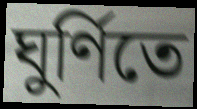
ঘুর্ণিতে